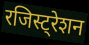
रजिस्ट्रेशन